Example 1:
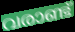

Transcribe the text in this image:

വരാണ്ട്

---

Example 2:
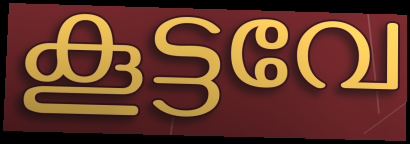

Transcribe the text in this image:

കൂട്ടവേ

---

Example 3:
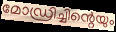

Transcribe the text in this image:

മോഡ്രിച്ചിന്റെയും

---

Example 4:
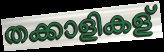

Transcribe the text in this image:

തക്കാളികള്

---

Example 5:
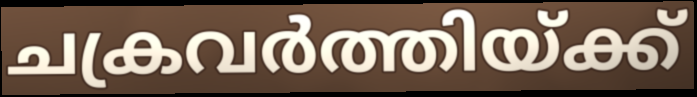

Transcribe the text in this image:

ചക്രവർത്തിയ്ക്ക്